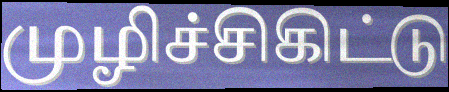
முழிச்சிகிட்டு